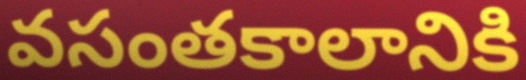
వసంతకాలానికి